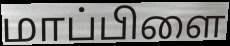
மாப்பிளை